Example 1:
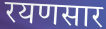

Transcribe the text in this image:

रयणसार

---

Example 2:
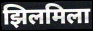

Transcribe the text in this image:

झिलमिला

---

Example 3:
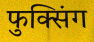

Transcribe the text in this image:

फुक्सिंग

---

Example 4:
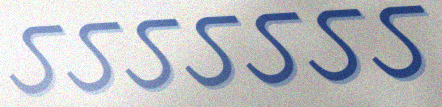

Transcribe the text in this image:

ऽऽऽऽऽऽऽ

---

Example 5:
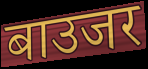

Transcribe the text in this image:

बाउजर